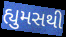
હ્યુમસથી